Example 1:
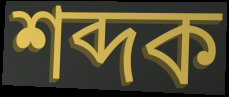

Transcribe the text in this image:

শব্দক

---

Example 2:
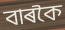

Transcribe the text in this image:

বাৰকৈ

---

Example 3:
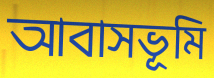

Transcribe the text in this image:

আবাসভূমি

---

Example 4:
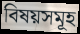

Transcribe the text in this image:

বিষয়সমূহ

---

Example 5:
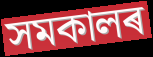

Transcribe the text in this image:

সমকালৰ